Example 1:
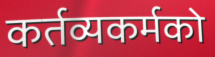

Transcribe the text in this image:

कर्तव्यकर्मको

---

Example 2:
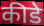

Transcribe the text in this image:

कीडे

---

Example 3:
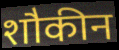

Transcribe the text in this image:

शौकीन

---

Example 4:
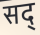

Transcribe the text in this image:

सद्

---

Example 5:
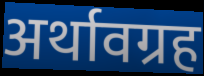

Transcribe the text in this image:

अर्थावग्रह